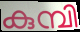
കുമ്പി